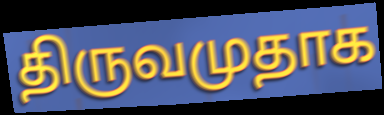
திருவமுதாக